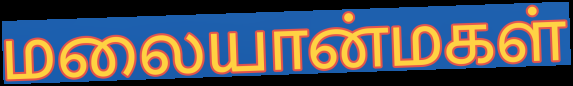
மலையான்மகள்